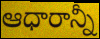
ఆధారాన్నీ